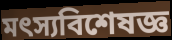
মৎস্যবিশেষজ্ঞ